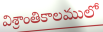
విశ్రాంతికాలములో